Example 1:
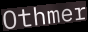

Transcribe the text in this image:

Othmer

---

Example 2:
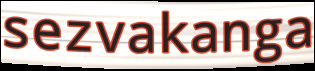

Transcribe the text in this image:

sezvakanga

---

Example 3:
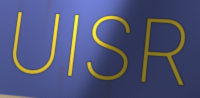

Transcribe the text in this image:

UISR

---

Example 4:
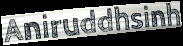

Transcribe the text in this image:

Aniruddhsinh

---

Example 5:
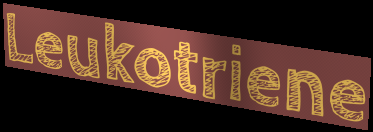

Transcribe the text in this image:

Leukotriene